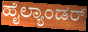
ಹೈಲ್ಯಾಂಡರ್